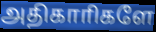
அதிகாரிகளே